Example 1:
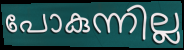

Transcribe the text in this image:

പോകുന്നില്ല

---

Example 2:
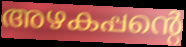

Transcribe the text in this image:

അഴകപ്പന്റെ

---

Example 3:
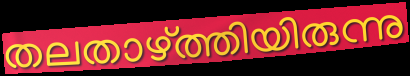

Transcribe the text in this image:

തലതാഴ്ത്തിയിരുന്നു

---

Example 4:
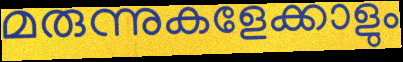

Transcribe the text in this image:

മരുന്നുകളേക്കാളും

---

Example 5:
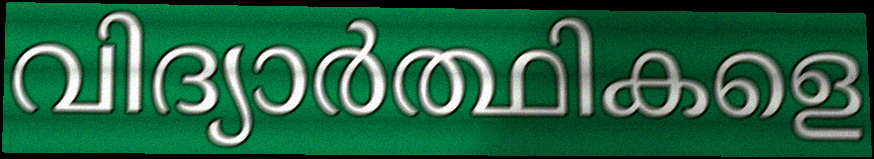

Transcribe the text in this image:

വിദ്യാർത്ഥികളെ